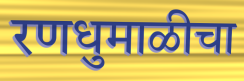
रणधुमाळीचा